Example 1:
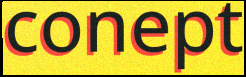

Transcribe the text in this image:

conept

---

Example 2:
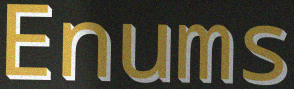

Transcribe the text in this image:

Enums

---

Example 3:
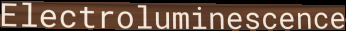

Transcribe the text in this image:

Electroluminescence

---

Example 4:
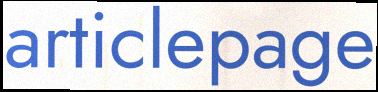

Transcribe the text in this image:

articlepage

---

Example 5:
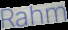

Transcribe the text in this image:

Rahm